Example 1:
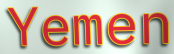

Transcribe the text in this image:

Yemen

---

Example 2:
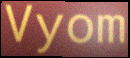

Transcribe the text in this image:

Vyom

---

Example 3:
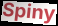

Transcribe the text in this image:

Spiny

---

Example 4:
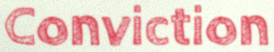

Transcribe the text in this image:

Conviction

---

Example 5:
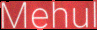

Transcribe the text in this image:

Mehul